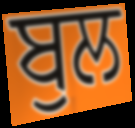
ਬੁਲ